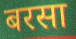
बरसा